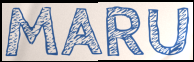
MARU